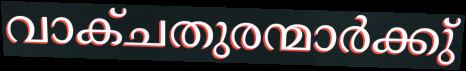
വാക്ചതുരന്മാർക്കു്